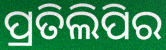
ପ୍ରତିଲିପିର